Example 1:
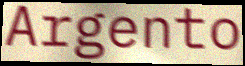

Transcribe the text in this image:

Argento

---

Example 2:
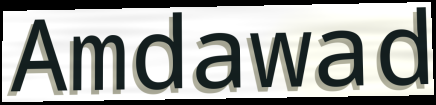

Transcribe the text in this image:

Amdawad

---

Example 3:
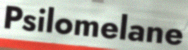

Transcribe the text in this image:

Psilomelane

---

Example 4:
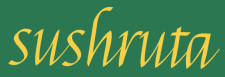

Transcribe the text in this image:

sushruta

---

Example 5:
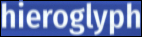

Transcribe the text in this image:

hieroglyph